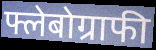
फ्लेबोग्राफी